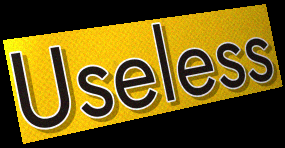
Useless